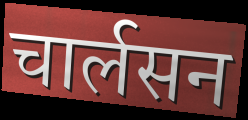
चार्लसन